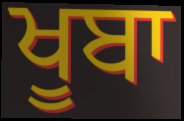
ਖੂਬਾ